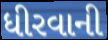
ધીરવાની